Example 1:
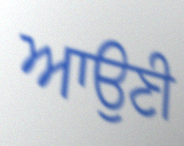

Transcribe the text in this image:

ਆਉਣੀ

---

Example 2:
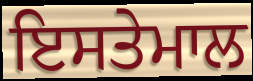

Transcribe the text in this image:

ਇਸਤੇਮਾਲ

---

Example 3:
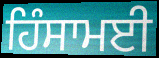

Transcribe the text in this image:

ਹਿੰਸਾਮਈ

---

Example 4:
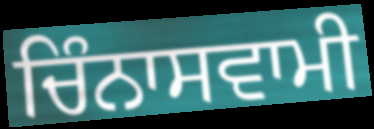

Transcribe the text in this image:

ਚਿੰਨਾਸਵਾਮੀ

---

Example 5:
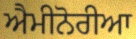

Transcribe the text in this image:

ਐਮੀਨੋਰੀਆ